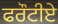
ਫਰੌਟੀਏ